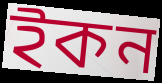
ইকন